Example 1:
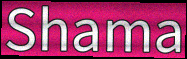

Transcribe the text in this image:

Shama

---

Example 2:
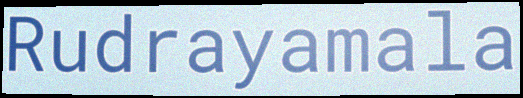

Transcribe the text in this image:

Rudrayamala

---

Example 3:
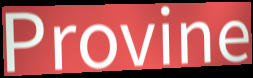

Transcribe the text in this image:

Provine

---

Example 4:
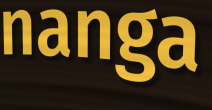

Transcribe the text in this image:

nanga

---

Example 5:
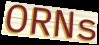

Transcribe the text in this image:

ORNs